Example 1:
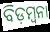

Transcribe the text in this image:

ବିଡ଼ମ୍ୱନା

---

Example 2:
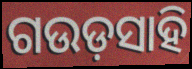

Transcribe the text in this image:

ଗଉଡ଼ସାହି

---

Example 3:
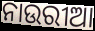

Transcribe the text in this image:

ନାଉରୀଆ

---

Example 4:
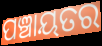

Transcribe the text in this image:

ପଞ୍ଚାୟତର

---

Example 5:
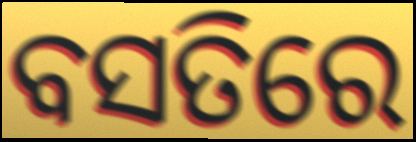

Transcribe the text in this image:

ବସତିରେ